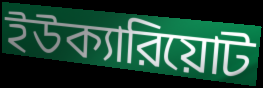
ইউক্যারিয়োট